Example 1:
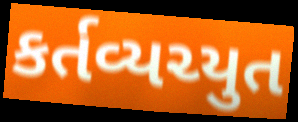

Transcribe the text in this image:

કર્તવ્યચ્યુત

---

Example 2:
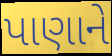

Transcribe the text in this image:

પાણાને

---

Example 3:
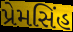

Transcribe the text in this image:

પ્રેમસિંહ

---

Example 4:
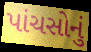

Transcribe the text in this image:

પાંચસોનું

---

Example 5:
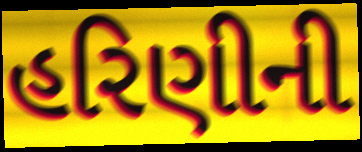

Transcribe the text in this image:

હરિણીની